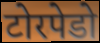
टोरपेडो